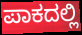
ಪಾಕದಲ್ಲಿ